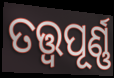
ତତ୍ତ୍ୱପୂର୍ଣ୍ଣ